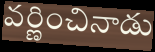
వర్ణించినాడు